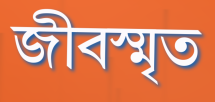
জীবস্মৃত